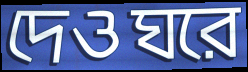
দেওঘরে